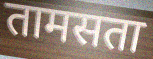
तामसता